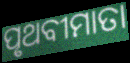
ପୃଥବୀମାତା